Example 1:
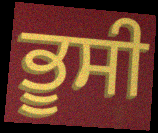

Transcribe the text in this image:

ਭੂਸੀ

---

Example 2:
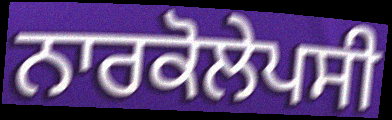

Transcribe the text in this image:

ਨਾਰਕੋਲੇਪਸੀ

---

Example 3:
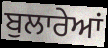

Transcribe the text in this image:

ਬੁਲਾਰੇਆਂ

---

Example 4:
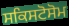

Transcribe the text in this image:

ਸਕਿਸਟੋਸੋਮ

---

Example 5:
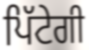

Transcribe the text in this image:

ਪਿੱਟੇਗੀ